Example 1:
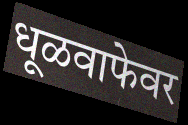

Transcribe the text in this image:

धूळवाफेवर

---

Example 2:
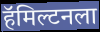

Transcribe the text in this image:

हॅमिल्टनला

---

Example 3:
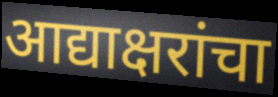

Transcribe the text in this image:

आद्याक्षरांचा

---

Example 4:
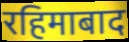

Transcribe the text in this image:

रहिमाबाद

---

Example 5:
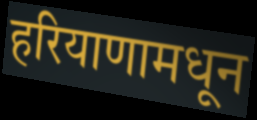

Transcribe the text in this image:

हरियाणामधून